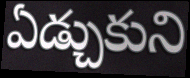
ఏడ్చుకుని